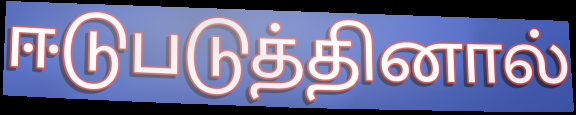
ஈடுபடுத்தினால்